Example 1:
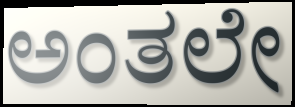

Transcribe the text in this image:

ಅಂತಲೇ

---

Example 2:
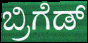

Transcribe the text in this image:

ಬ್ರಿಗೆಡ್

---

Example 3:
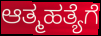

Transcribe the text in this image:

ಆತ್ಮಹತ್ಯೆಗೆ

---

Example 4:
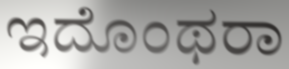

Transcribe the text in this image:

ಇದೊಂಥರಾ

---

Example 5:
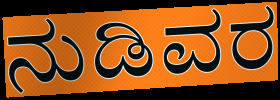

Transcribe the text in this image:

ನುಡಿವರ